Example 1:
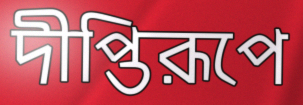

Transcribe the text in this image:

দীপ্তিরূপে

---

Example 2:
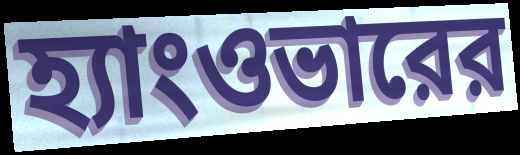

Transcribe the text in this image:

হ্যাংওভারের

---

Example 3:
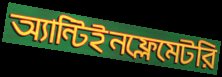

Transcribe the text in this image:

অ্যান্টিইনফ্লেমেটরি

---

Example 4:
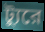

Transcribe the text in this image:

ট্যুরে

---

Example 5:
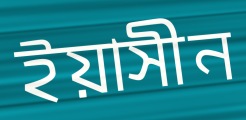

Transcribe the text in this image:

ইয়াসীন